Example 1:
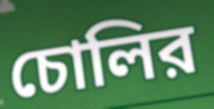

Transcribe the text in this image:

চোলির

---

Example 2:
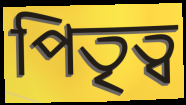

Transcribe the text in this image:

পিতৃত্ব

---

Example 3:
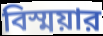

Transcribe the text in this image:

বিস্ময়ার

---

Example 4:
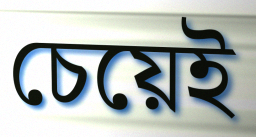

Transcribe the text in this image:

চেয়েই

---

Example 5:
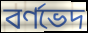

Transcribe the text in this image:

বর্ণভেদ